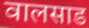
वालसाड